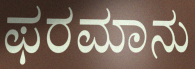
ಫರಮಾನು